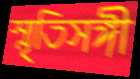
স্মৃতিসঙ্গী